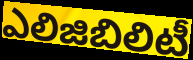
ఎలిజిబిలిటీ